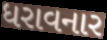
ધરાવનાર